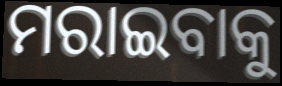
ମରାଇବାକୁ